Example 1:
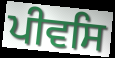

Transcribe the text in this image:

ਪੀਵਸਿ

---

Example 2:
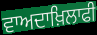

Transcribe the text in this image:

ਵਾਅਦਾਖ਼ਿਲਾਫੀ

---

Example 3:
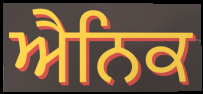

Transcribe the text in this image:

ਐਨਿਕ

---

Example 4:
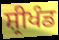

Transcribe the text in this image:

ਸ਼੍ਰੀਖੰਡ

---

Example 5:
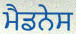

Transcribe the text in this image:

ਮੈਡਨੇਸ